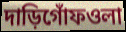
দাড়িগোঁফওলা